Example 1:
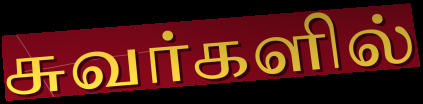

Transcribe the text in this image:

சுவர்களில்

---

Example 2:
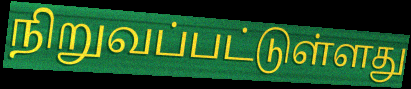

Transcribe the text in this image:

நிறுவப்பட்டுள்ளது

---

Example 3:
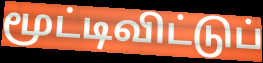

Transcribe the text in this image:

மூட்டிவிட்டுப்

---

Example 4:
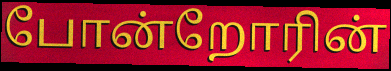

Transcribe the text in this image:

போன்றோரின்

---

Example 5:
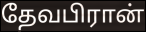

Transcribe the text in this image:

தேவபிரான்